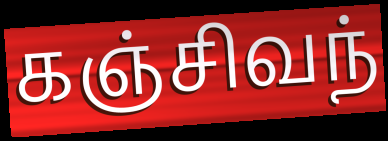
கஞ்சிவந்